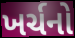
ખર્ચનો